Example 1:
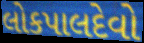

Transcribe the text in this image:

લોકપાલદેવો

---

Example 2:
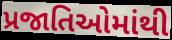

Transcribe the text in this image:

પ્રજાતિઓમાંથી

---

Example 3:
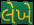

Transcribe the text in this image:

લેખે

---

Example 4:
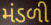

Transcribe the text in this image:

મંડળી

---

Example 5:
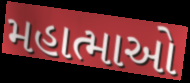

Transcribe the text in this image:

મહાત્માઓ